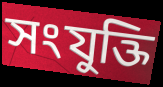
সংযুক্তি